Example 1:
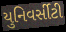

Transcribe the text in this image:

યુનિવર્સીટી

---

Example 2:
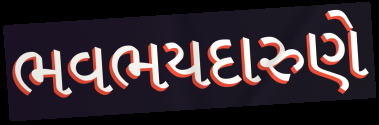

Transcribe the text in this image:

ભવભયદારુણે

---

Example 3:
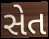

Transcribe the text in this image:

સેત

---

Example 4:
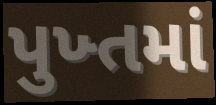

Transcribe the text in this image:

પુખ્તમાં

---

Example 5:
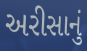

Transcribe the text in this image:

અરીસાનું